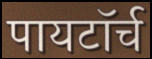
पायटॉर्च